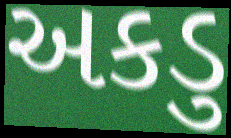
અકડુ